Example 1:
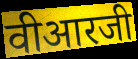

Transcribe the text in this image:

वीआरजी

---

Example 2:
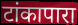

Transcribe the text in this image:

टांकापारा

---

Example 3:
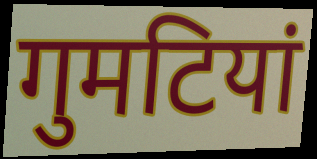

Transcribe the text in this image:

गुमटियां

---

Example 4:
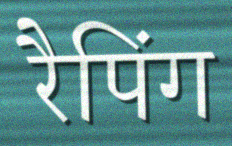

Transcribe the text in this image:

रैपिंग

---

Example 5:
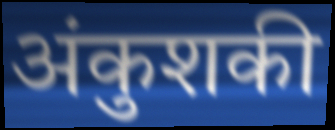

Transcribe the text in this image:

अंकुशकी